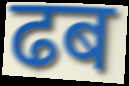
ढब